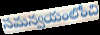
సమన్వయంలోంచి